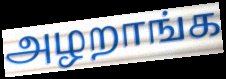
அழறாங்க